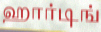
ஹார்டிங்